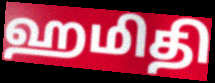
ஹமிதி